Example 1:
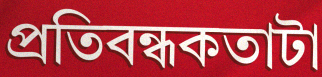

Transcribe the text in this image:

প্রতিবন্ধকতাটা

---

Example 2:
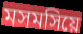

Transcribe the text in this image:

মসমসিয়ে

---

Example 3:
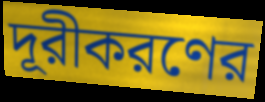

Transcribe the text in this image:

দূরীকরণের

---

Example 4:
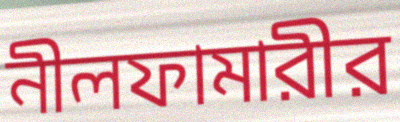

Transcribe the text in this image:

নীলফামারীর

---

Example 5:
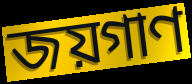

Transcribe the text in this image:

জয়গাণ